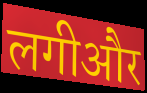
लगीऔर